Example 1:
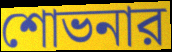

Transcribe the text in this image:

শোভনার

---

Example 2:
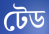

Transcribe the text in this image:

টেড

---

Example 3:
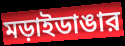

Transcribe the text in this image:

মড়াইডাঙার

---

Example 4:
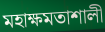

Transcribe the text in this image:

মহাক্ষমতাশালী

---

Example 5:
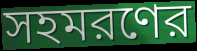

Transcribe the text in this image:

সহমরণের